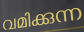
വമിക്കുന്ന